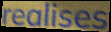
realises